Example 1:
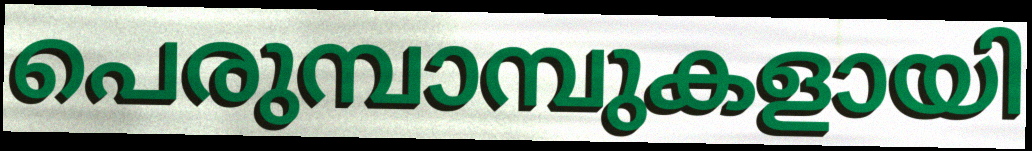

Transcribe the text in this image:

പെരുമ്പാമ്പുകളായി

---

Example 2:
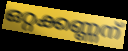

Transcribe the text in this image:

ഒറ്റക്കണ്ണന്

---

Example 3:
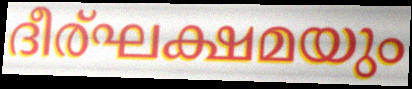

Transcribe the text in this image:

ദീര്ഘക്ഷമയും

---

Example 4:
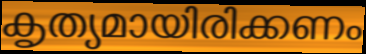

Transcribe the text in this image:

കൃത്യമായിരിക്കണം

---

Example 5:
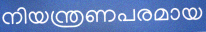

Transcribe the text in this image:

നിയന്ത്രണപരമായ